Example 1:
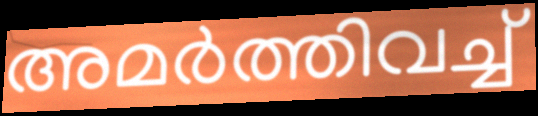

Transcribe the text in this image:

അമർത്തിവച്ച്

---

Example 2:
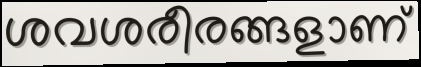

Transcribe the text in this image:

ശവശരീരങ്ങളാണ്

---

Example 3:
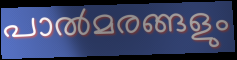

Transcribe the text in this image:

പാൽമരങ്ങളും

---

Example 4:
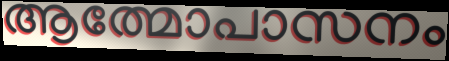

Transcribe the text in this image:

ആത്മോപാസനം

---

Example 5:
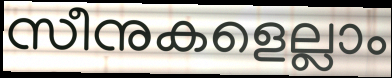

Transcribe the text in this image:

സീനുകളെല്ലാം